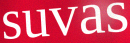
suvas